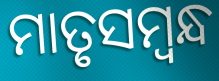
ମାତୃସମ୍ବନ୍ଧ